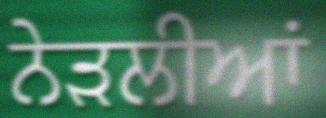
ਨੇੜਲੀਆਂ